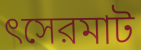
ৎসেরমাট